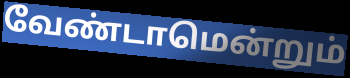
வேண்டாமென்றும்